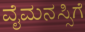
ವೈಮನಸ್ಸಿಗೆ